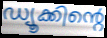
ഡ്യൂക്കിന്റെ